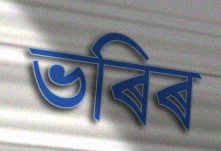
ভৰিৰ